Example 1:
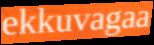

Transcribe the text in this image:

ekkuvagaa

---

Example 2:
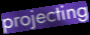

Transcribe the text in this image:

projecting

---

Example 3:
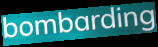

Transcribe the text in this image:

bombarding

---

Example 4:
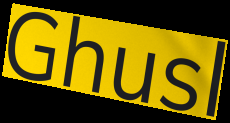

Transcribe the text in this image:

Ghusl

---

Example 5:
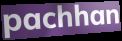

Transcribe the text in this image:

pachhan